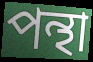
পন্থা